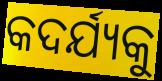
କଦର୍ଯ୍ୟକୁ